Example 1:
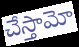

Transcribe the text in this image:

చేస్తామో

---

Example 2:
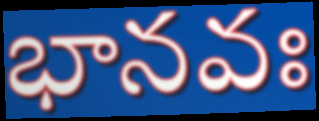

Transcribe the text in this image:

భానవః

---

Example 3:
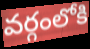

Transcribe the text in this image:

వర్గంలోకి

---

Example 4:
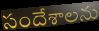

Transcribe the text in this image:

సందేశాలను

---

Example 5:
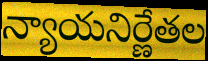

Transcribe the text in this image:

న్యాయనిర్ణేతల